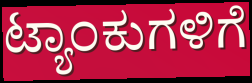
ಟ್ಯಾಂಕುಗಳಿಗೆ